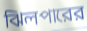
ঝিলপারের